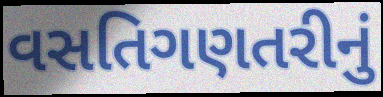
વસતિગણતરીનું